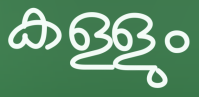
കള്ളും